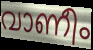
വാണീം